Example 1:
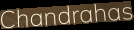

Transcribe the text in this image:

Chandrahas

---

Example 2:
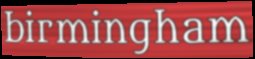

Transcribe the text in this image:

birmingham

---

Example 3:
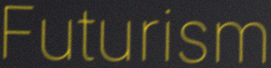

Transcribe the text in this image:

Futurism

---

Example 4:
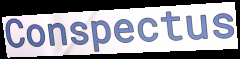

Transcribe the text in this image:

Conspectus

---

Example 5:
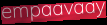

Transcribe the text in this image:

empaavaay